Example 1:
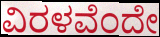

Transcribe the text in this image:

ವಿರಳವೆಂದೇ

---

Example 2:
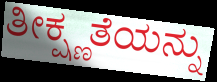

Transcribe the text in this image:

ತೀಕ್ಷ್ಣತೆಯನ್ನು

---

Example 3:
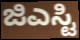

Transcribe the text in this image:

ಜಿಎಸ್ಟಿ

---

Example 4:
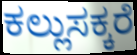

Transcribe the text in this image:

ಕಲ್ಲುಸಕ್ಕರೆ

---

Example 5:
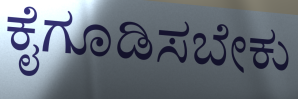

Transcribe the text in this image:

ಕೈಗೂಡಿಸಬೇಕು